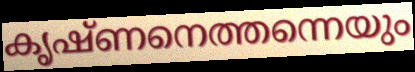
കൃഷ്ണനെത്തന്നെയും